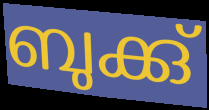
ബുക്കു്